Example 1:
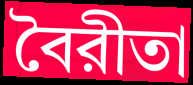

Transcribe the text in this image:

বৈরীতা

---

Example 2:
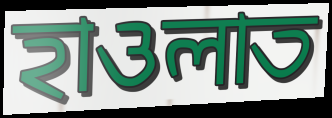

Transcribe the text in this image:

হাওলাত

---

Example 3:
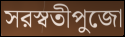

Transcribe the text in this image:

সরস্বতীপুজো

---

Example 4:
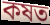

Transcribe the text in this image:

কষত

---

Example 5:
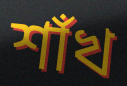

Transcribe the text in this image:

শাঁখ